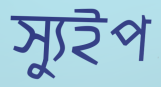
স্যুইপ